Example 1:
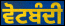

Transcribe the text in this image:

ਵੋਟਬੰਦੀ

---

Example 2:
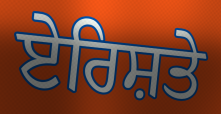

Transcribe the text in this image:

ਏਰਿਸ਼ਤੇ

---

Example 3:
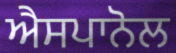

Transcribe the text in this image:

ਐਸਪਾਨੋਲ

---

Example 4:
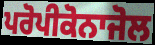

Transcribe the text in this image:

ਪਰੋਪੀਕੋਨਾਜੋਲ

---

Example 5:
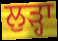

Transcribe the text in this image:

ਲੁੜ੍ਹਾ